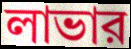
লাভার